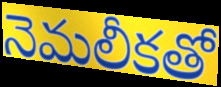
నెమలీకతో